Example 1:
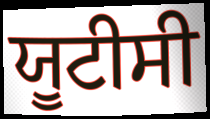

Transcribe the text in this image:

ਯੂਟੀਸੀ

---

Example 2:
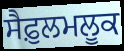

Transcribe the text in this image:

ਸੈਫ਼ੁਲਮਲੂਕ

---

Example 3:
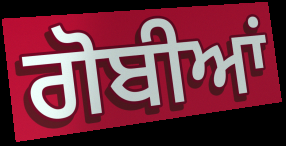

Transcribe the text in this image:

ਗੋਬੀਆਂ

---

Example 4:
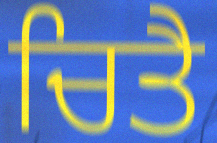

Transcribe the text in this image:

ਚਿਤੈ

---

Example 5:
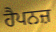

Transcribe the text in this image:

ਹੈਪਨਜ਼